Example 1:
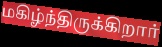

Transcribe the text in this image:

மகிழ்ந்திருக்கிறார்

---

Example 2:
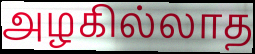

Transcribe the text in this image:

அழகில்லாத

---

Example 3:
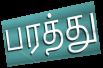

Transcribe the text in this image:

பரத்து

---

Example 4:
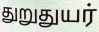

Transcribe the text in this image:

துறுதுயர்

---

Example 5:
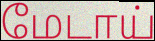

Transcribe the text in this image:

மேடாய்